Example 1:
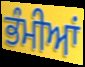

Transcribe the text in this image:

ਭੰਮੀਆਂ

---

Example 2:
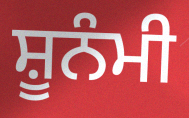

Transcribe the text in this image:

ਸ਼ੂਨੰਮੀ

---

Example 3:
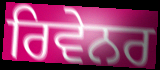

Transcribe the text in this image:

ਰਿਵੇਨਰ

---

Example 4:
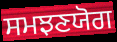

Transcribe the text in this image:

ਸਮਝਣਯੋਗ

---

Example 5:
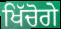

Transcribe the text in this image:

ਖਿੱਚੋਗੇ